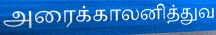
அரைக்காலனித்துவ